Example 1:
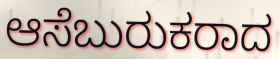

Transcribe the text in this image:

ಆಸೆಬುರುಕರಾದ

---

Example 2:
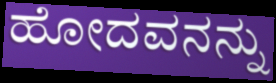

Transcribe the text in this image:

ಹೋದವನನ್ನು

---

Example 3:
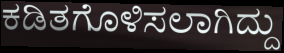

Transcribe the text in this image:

ಕಡಿತಗೊಳಿಸಲಾಗಿದ್ದು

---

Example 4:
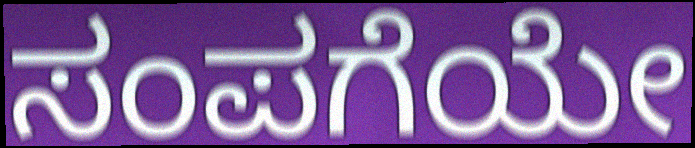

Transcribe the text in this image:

ಸಂಪಗೆಯೇ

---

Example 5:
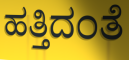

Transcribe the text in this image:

ಹತ್ತಿದಂತೆ